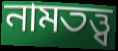
নামতত্ত্ব